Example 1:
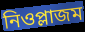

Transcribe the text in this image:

নিওপ্লাজম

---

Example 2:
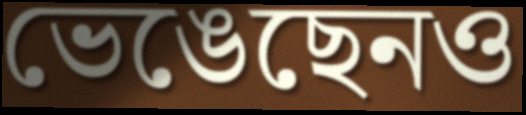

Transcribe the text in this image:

ভেঙেছেনও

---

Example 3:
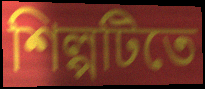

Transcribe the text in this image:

শিল্পটিতে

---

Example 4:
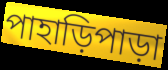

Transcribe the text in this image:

পাহাড়িপাড়া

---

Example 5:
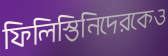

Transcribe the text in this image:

ফিলিস্তিনিদেরকেও